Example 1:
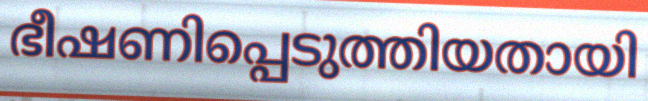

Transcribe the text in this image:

ഭീഷണിപ്പെടുത്തിയതായി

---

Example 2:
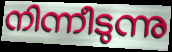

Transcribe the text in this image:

നിന്നീടുന്നു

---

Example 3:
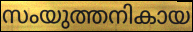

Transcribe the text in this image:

സംയുത്തനികായ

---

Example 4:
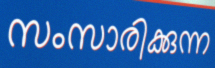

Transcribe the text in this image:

സംസാരിക്കുന്ന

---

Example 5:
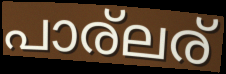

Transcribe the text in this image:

പാര്ലര്